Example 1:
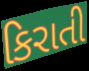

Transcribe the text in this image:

કિરાતી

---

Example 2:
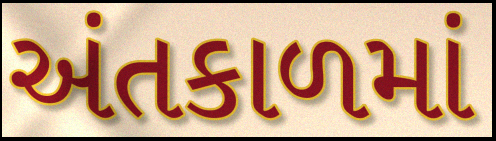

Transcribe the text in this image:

અંતકાળમાં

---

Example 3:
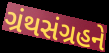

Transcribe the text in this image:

ગ્રંથસંગ્રહને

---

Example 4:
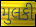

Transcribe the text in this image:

મુલકી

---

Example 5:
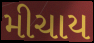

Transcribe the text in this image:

મીચાય